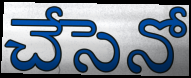
చేసెనో